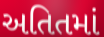
અતિતમાં